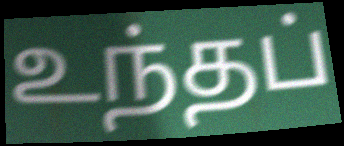
உந்தப்